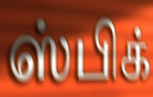
ஸ்பிக்